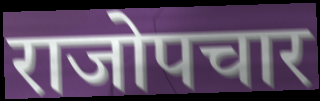
राजोपचार